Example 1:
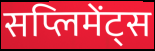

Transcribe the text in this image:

सप्लिमेंट्स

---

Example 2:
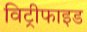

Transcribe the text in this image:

विट्रीफाइड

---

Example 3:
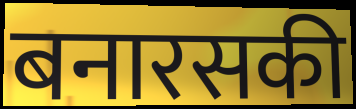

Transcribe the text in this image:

बनारसकी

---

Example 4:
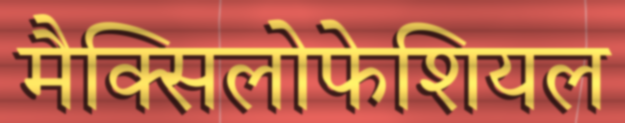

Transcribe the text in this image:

मैक्सिलोफेशियल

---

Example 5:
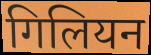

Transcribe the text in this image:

गिलियन